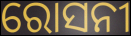
ରୋସନୀ